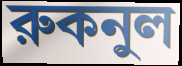
রুকনুল